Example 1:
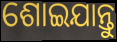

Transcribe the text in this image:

ଶୋଇଯାନ୍ତୁ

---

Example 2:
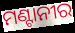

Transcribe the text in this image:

ମଣ୍ଟାନୀର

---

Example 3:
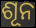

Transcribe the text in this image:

ଶୂନ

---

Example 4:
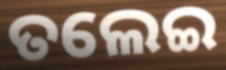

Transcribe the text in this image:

ତଲେଇ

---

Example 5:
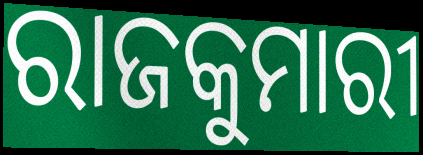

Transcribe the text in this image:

ରାଜକୁମାରୀ